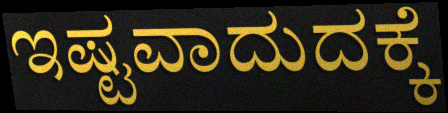
ಇಷ್ಟವಾದುದಕ್ಕೆ